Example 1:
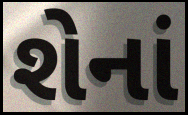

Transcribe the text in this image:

શેનાં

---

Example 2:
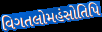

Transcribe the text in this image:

વિગતલોમહંસોતિપિ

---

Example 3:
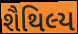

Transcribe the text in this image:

શૈથિલ્ય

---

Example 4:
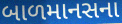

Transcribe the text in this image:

બાળમાનસના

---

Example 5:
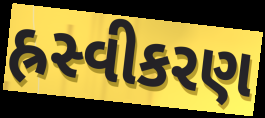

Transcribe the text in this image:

હ્રસ્વીકરણ